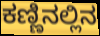
ಕಣ್ಣಿನಲ್ಲಿನ